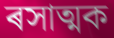
ৰসাত্মক